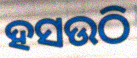
ହସଉଠି